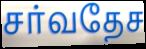
சர்வதேச